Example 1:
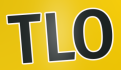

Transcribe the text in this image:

TLO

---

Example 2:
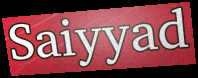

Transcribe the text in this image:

Saiyyad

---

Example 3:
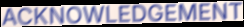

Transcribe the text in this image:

ACKNOWLEDGEMENT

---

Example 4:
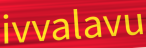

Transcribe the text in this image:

ivvalavu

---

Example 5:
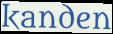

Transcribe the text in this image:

kanden